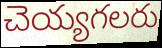
చెయ్యగలరు